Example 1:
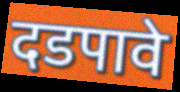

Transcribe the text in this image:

दडपावे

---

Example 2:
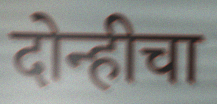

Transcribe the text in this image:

दोन्हीचा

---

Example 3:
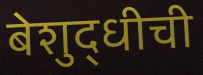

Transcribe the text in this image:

बेशुद्धीची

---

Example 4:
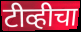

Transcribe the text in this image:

टीव्हीचा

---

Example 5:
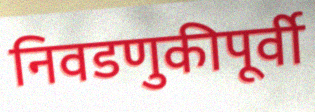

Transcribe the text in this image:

निवडणुकीपूर्वी